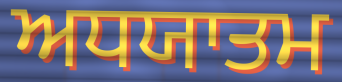
ਅਧਯਾਤਮ